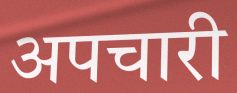
अपचारी